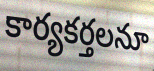
కార్యకర్తలనూ